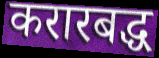
करारबद्ध